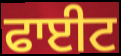
ਫਾਈਟ